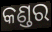
କଣ୍ଡର